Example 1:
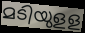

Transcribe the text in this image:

മടിയുളള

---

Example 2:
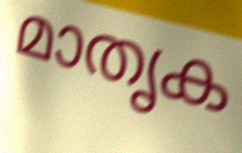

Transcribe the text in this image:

മാതൃക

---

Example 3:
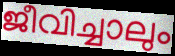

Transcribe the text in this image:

ജീവിച്ചാലും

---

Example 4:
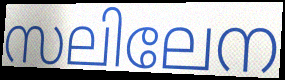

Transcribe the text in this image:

സലിലേന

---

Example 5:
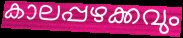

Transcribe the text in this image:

കാലപ്പഴക്കവും